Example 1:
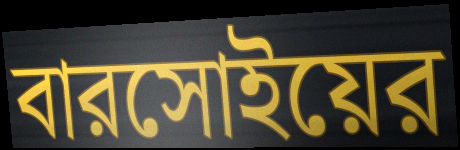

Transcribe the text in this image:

বারসোইয়ের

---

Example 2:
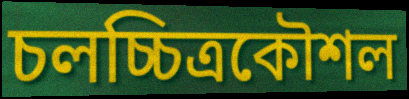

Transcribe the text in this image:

চলচ্চিত্রকৌশল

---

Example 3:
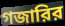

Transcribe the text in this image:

গজারির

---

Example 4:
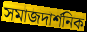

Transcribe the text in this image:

সমাজদার্শনিক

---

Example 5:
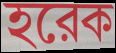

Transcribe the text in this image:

হরেক